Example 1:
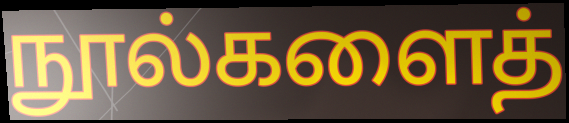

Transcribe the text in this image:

நூல்களைத்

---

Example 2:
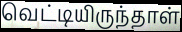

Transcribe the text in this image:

வெட்டியிருந்தாள்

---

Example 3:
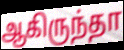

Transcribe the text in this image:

ஆகிருந்தா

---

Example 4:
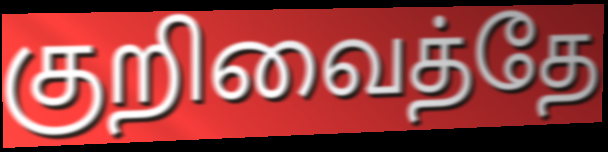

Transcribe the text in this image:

குறிவைத்தே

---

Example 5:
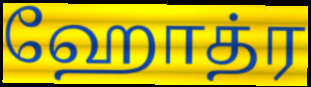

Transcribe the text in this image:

ஹோத்ர